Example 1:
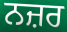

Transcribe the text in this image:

ਨਜ਼ਰ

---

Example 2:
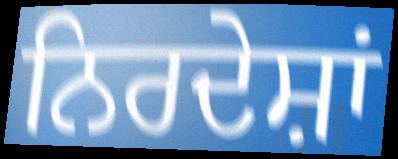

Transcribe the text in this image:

ਨਿਰਦੇਸ਼ਾਂ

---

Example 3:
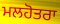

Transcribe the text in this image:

ਮਲਹੋਤਰਾ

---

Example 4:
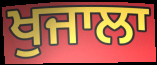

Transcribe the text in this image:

ਖੁਜਾਲਾ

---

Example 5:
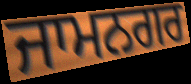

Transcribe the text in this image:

ਜਾਮਨਗਰ